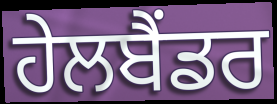
ਹੇਲਬੈਂਡਰ